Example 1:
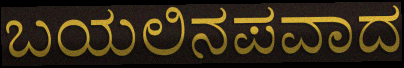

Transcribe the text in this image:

ಬಯಲಿನಪವಾದ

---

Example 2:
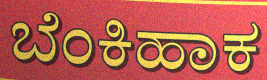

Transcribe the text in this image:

ಬೆಂಕಿಹಾಕ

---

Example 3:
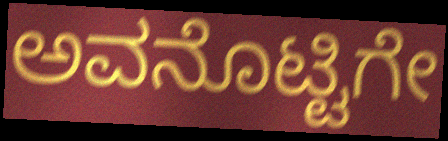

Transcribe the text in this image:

ಅವನೊಟ್ಟಿಗೇ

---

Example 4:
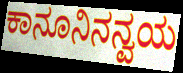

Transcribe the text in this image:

ಕಾನೂನಿನನ್ವಯ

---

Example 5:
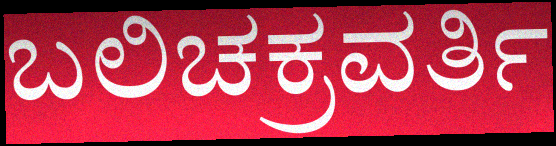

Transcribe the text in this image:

ಬಲಿಚಕ್ರವರ್ತಿ